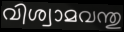
വിശ്വാമവന്തു